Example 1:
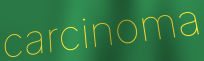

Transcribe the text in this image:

carcinoma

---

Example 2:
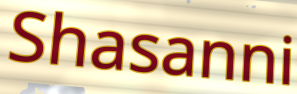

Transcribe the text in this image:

Shasanni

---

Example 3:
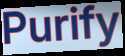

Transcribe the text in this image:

Purify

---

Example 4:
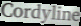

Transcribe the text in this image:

Cordyline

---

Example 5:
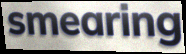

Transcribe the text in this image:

smearing